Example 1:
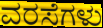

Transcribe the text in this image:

ವರಸೆಗಳು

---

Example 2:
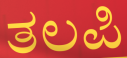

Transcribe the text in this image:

ತಲಪಿ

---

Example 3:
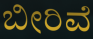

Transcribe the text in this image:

ಬೀರಿವೆ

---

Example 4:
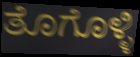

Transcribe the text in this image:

ತೊಗೊಳ್ಳಿ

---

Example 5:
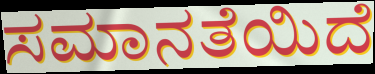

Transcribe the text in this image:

ಸಮಾನತೆಯಿದೆ